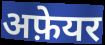
अफ़ेयर